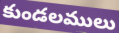
కుండలములు